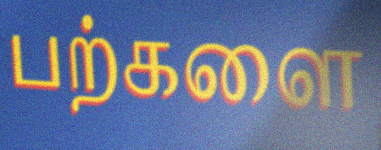
பற்களை